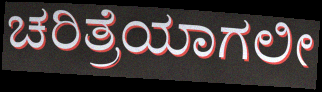
ಚರಿತ್ರೆಯಾಗಲೀ